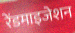
रेंडमाइजेशन